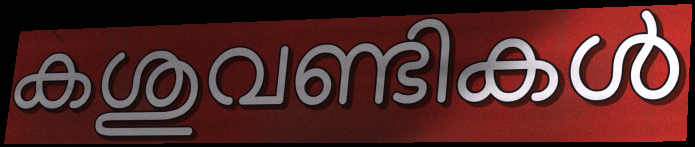
കശുവണ്ടികൾ